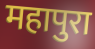
महापुरा